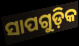
ସାପଗୁଡ଼ିକ